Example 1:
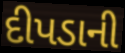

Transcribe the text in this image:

દીપડાની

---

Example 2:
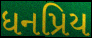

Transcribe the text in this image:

ધનપ્રિય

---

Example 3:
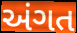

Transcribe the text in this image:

અંગત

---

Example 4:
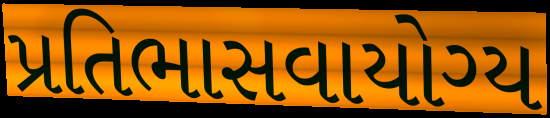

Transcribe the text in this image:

પ્રતિભાસવાયોગ્ય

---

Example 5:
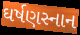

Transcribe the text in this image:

ઘર્ષણસ્નાન